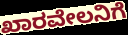
ಖಾರವೇಲನಿಗೆ